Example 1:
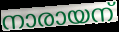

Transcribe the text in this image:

നാരായന്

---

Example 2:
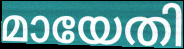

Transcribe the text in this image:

മായേതി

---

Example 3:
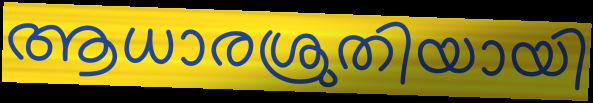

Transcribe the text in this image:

ആധാരശ്രുതിയായി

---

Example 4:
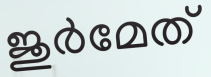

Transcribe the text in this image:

ജുർമേത്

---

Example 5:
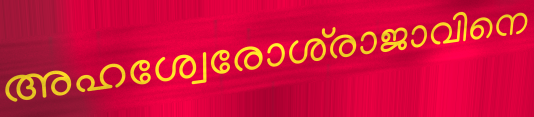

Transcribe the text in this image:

അഹശ്വേരോശ്‌രാജാവിനെ